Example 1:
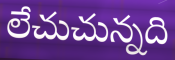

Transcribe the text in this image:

లేచుచున్నది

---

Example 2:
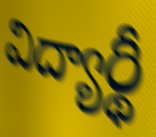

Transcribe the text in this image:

విద్యార్థీ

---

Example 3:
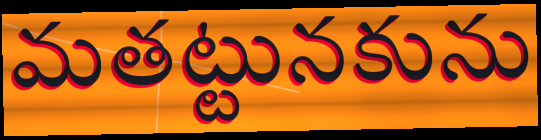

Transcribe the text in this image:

మతట్టునకును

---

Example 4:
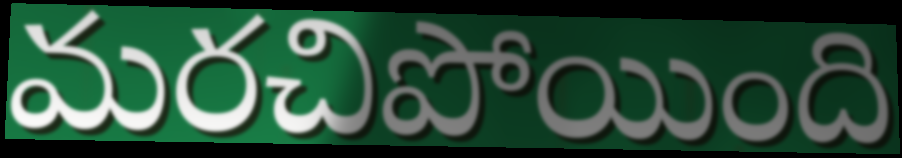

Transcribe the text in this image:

మరచిపోయింది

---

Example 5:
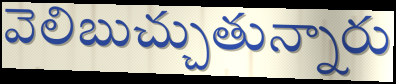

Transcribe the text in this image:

వెలిబుచ్చుతున్నారు